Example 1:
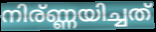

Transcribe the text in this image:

നിര്ണ്ണയിച്ചത്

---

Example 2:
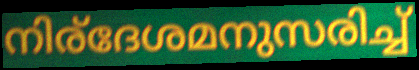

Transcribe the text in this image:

നിര്ദേശമനുസരിച്ച്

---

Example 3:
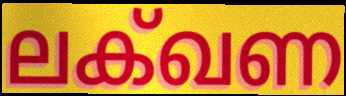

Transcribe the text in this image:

ലക്ഖണ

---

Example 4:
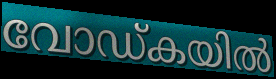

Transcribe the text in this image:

വോഡ്കയിൽ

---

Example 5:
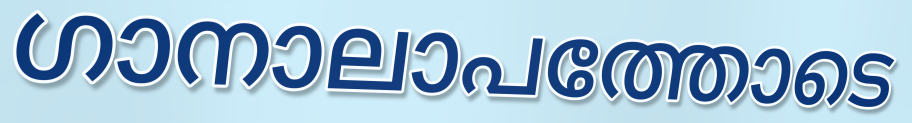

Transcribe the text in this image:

ഗാനാലാപത്തോടെ